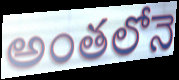
అంతలోనె